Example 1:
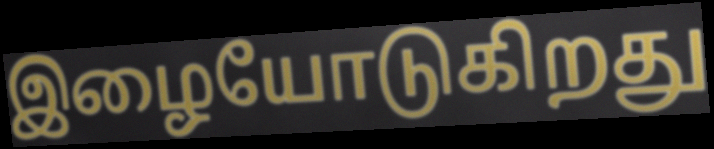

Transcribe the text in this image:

இழையோடுகிறது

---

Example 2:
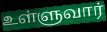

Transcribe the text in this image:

உள்ளுவார்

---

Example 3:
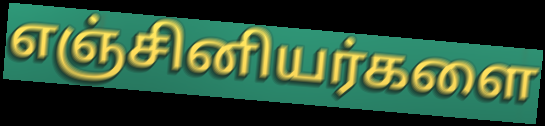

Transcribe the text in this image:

எஞ்சினியர்களை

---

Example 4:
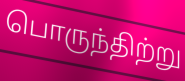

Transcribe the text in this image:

பொருந்திற்று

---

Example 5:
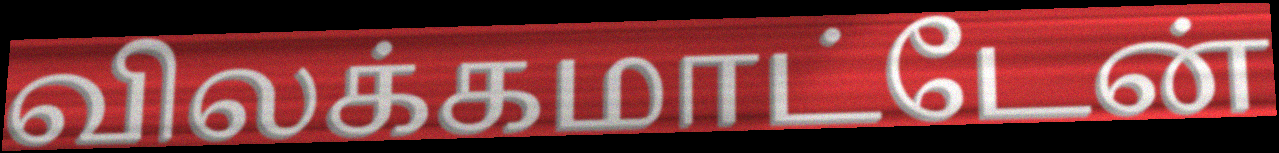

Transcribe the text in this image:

விலக்கமாட்டேன்